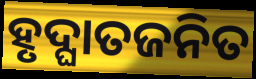
ହୃଦ୍ଘାତଜନିତ